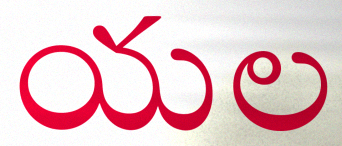
యల